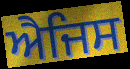
ਐਜਿਸ